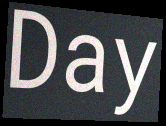
Day